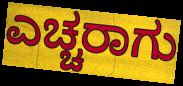
ಎಚ್ಚರಾಗು